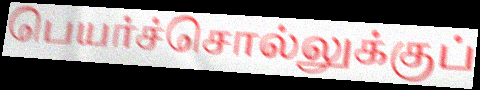
பெயர்ச்சொல்லுக்குப்